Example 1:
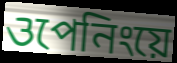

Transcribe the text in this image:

ওপেনিংয়ে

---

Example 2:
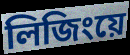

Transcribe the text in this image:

লিজিংয়ে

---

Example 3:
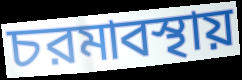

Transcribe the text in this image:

চরমাবস্থায়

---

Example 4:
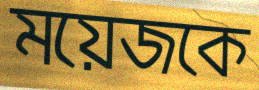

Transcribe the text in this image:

ময়েজকে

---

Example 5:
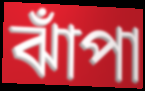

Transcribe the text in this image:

ঝাঁপা